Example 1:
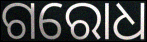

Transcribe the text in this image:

ଗରୋଧ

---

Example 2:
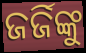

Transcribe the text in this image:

ଜର୍ଜିଙ୍କୁ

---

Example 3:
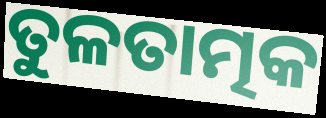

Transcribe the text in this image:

ତୁଳତାତ୍ମକ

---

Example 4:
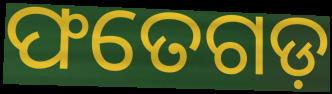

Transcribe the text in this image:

ଫତେଗଡ଼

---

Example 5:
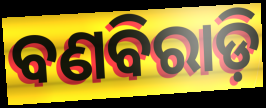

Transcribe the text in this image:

ବଣବିରାଡ଼ି